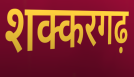
शक्करगढ़